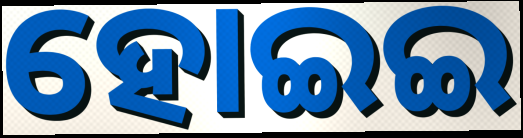
ହୋଇଇ